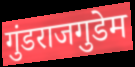
गुंडराजगुडेम